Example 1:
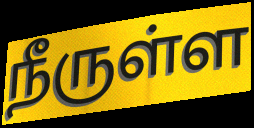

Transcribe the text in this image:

நீருள்ள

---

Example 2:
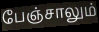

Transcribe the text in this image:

பேஞ்சாலும்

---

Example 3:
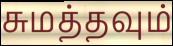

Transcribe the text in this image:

சுமத்தவும்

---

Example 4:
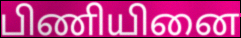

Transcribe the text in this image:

பிணியினை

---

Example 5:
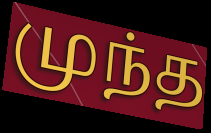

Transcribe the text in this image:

முந்த